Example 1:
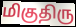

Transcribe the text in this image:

மிகுதிரு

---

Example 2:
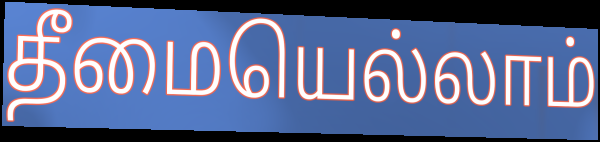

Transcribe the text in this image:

தீமையெல்லாம்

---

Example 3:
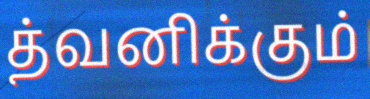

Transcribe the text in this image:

த்வனிக்கும்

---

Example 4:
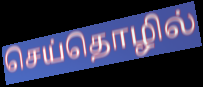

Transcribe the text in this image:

செய்தொழில்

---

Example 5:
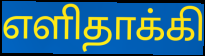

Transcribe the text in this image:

எளிதாக்கி